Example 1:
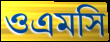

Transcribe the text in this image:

ওএমসি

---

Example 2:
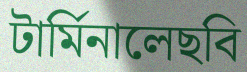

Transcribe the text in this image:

টার্মিনালেছবি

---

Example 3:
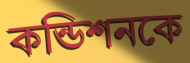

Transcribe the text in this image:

কন্ডিশনকে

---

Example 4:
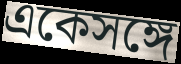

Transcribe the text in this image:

একেসঙ্গে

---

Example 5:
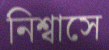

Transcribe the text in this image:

নিশ্বাসে